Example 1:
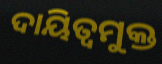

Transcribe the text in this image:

ଦାୟିତ୍ବମୁକ୍ତ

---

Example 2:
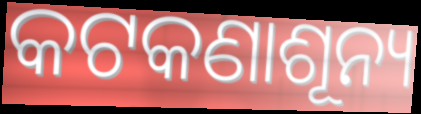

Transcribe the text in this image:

କଟକଣାଶୂନ୍ୟ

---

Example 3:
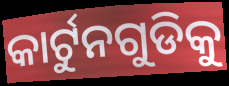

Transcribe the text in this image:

କାର୍ଟୁନଗୁଡିକୁ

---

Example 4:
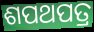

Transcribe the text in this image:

ଶପଥପତ୍ର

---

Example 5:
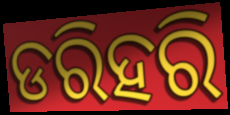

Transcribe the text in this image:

ଡରିହରି